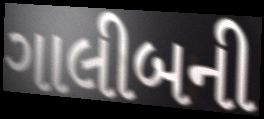
ગાલીબની